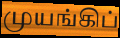
முயங்கிப்